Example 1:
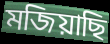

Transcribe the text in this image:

মজিয়াছি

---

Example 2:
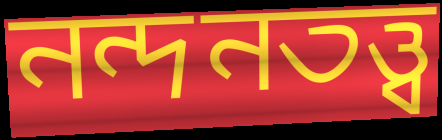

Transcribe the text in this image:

নন্দনতত্ত্ব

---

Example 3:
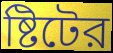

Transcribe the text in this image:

ষ্টিটের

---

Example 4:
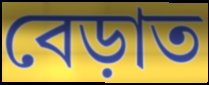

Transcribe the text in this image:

বেড়াত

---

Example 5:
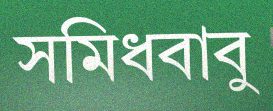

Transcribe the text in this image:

সমিধবাবু